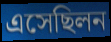
এসেছিলন